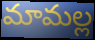
మామల్ల